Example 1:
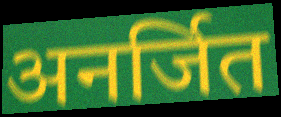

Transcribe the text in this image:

अनर्जित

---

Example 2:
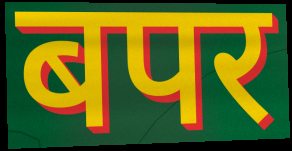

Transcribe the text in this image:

बपर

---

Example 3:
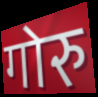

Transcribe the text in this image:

गोरु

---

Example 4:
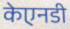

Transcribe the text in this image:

केएनडी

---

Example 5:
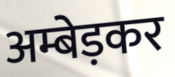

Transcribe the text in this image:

अम्बेड़कर